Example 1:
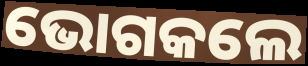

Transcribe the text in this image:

ଭୋଗକଲେ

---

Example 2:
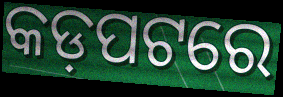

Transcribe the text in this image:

କଡ଼ପଟରେ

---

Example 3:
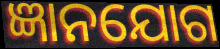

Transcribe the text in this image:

ଜ୍ଞାନଯୋଗ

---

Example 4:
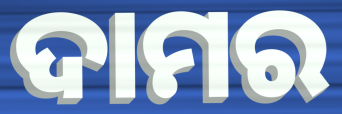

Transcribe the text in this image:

ଦାମର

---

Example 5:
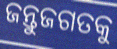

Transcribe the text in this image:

ଜନ୍ତୁଜଗତକୁ